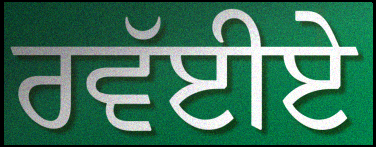
ਰਵੱਈਏ